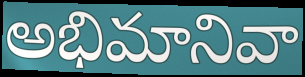
అభిమానివా